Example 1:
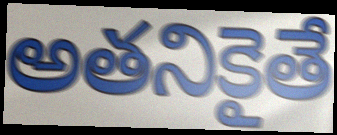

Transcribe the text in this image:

అతనికైతే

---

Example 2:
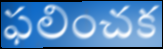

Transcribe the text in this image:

ఫలించక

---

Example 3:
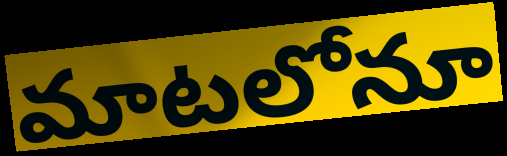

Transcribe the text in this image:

మాటలోనూ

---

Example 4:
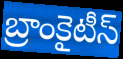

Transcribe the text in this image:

బ్రాంకైటీస్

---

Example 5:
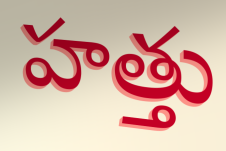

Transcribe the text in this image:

హత్తు